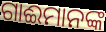
ଗାଈମାନଙ୍କ